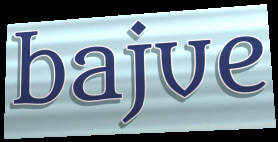
bajue